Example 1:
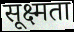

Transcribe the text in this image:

सूक्ष्मता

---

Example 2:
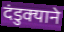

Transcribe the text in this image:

दंडुक्याने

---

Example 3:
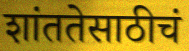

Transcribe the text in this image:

शांततेसाठीचं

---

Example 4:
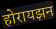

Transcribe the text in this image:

होरायझन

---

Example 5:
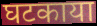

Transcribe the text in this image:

घटकाया